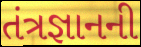
તંત્રજ્ઞાનની